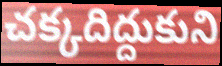
చక్కదిద్దుకుని